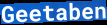
Geetaben